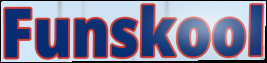
Funskool